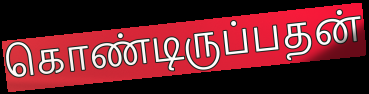
கொண்டிருப்பதன்